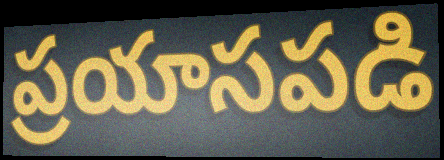
ప్రయాసపడి